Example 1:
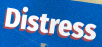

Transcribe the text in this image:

Distress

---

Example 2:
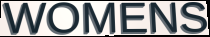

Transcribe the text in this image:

WOMENS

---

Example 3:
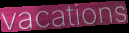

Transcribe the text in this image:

vacations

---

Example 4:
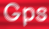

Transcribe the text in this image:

Gps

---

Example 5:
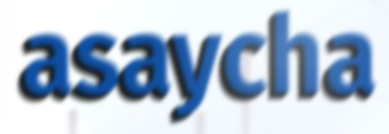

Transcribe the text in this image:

asaycha